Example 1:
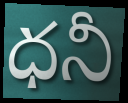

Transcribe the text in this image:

ధనీ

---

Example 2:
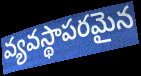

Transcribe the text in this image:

వ్యవస్థాపరమైన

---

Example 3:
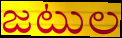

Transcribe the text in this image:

జటుల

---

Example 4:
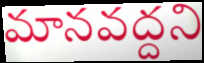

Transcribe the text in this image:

మానవద్దని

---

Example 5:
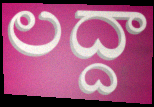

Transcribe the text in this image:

లద్దా